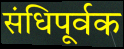
संधिपूर्वक